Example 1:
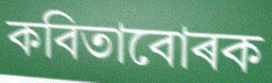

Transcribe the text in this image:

কবিতাবোৰক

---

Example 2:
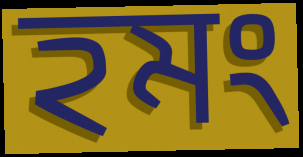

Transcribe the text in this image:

হমং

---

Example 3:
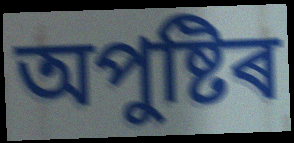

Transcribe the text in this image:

অপুষ্টিৰ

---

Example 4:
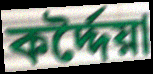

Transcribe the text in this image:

কৰ্দ্দৈয়া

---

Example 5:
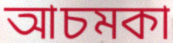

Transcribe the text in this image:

আচমকা